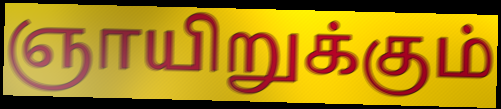
ஞாயிறுக்கும்